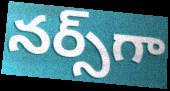
నర్స్‌గా